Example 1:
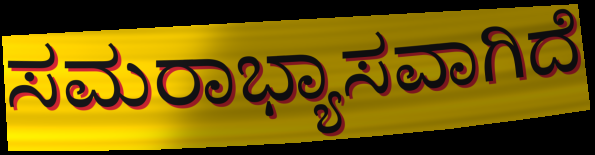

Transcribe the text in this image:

ಸಮರಾಭ್ಯಾಸವಾಗಿದೆ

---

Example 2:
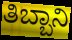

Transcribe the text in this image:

ತಿಬ್ಬಾನಿ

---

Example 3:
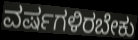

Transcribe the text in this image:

ವರ್ಷಗಳಿರಬೇಕು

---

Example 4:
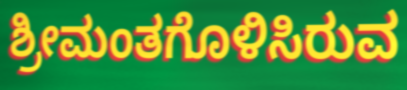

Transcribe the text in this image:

ಶ್ರೀಮಂತಗೊಳಿಸಿರುವ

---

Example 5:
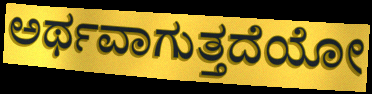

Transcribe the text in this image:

ಅರ್ಥವಾಗುತ್ತದೆಯೋ